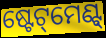
ଷ୍ଟେଟ୍‌ମେଣ୍ଟ୍